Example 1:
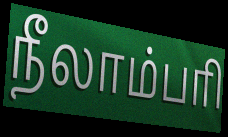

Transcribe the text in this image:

நீலாம்பரி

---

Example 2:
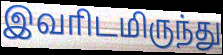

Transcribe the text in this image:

இவரிடமிருந்து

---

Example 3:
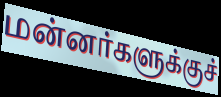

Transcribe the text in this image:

மன்னர்களுக்குச்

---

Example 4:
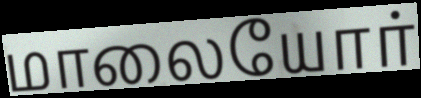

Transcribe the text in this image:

மாலையோர்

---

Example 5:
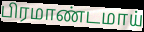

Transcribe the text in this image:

பிரமாண்டமாய்